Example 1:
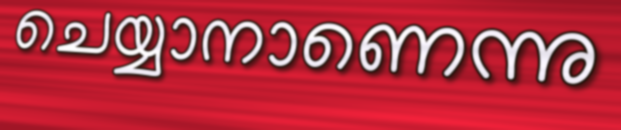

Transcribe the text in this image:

ചെയ്യാനാണെന്നു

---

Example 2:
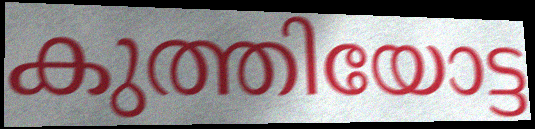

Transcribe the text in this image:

കുത്തിയോട്ട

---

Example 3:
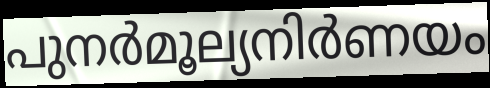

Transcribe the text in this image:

പുനർമൂല്യനിർണയം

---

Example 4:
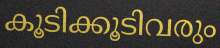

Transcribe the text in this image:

കൂടിക്കൂടിവരും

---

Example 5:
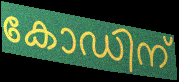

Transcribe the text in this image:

കോഡിന്